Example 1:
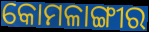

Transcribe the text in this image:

କୋମଳାଙ୍ଗୀର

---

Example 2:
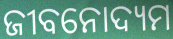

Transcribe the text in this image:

ଜୀବନୋଦ୍ୟମ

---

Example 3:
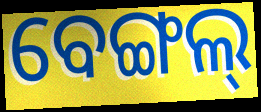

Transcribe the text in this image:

ବେଙ୍ଗଲ୍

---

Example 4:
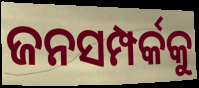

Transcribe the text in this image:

ଜନସମ୍ପର୍କକୁ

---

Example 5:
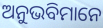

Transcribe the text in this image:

ଅନୁଭବିମାନେ